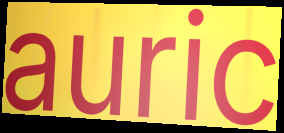
auric